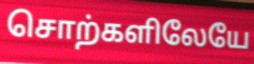
சொற்களிலேயே